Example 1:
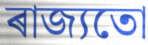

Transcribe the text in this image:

ৰাজ্যতো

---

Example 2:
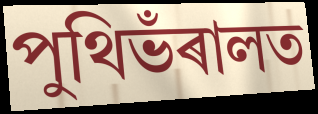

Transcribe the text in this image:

পুথিভঁৰালত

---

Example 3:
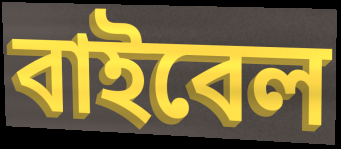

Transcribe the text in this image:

বাইবেল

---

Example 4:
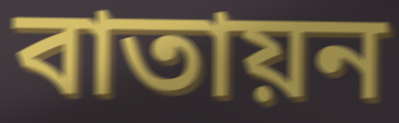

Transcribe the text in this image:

বাতায়ন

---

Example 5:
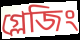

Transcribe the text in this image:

গ্লেজিং